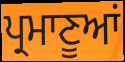
ਪ੍ਰਮਾਣੂਆਂ